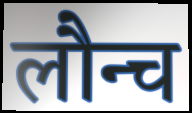
लौन्च